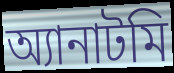
অ্যানাটমি